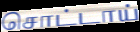
சொட்டாய்